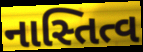
નાસ્તિત્વ